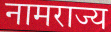
नामराज्य